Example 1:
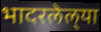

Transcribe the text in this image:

भादरलेल्या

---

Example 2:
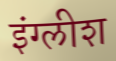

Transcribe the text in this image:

इंग्लीश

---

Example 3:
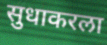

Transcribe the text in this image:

सुधाकरला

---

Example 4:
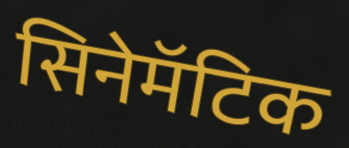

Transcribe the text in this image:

सिनेमॅटिक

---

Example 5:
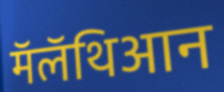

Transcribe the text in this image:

मॅलॅथिआन